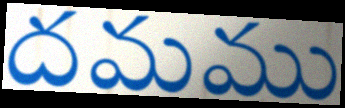
దమము